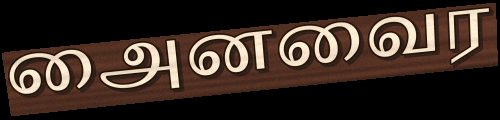
அைனவைர